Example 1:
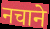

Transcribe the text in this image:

नचाने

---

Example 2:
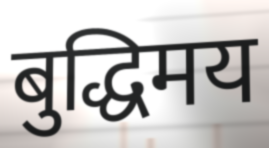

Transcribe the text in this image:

बुद्धिमय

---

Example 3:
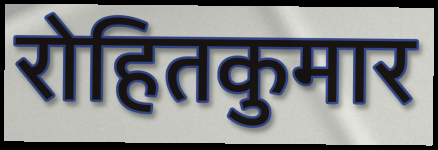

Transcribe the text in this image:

रोहितकुमार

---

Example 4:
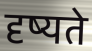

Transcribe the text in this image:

दृष्यते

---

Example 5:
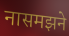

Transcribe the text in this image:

नासमझने